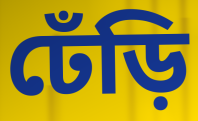
ঢেঁড়ি